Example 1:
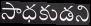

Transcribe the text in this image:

సాధకుడని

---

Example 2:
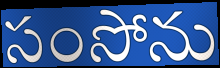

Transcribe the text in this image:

సంసోను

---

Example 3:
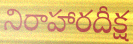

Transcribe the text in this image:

నిరాహారదీక్ష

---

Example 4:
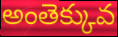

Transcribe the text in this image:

అంతెక్కువ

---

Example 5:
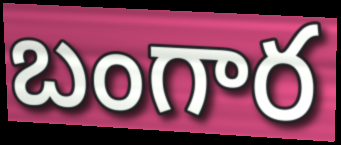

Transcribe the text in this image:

బంగార